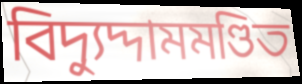
বিদ্যুদ্দামমণ্ডিত